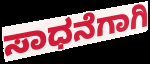
ಸಾಧನೆಗಾಗಿ